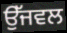
ਉੱਜਵਲ